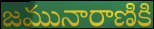
జమునారాణికి